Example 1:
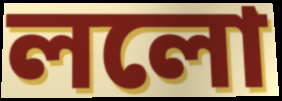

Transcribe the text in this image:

ললো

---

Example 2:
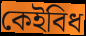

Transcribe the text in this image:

কেইবিধ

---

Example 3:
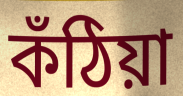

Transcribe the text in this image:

কঁঠিয়া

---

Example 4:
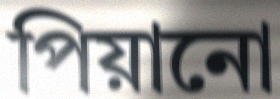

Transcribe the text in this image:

পিয়ানো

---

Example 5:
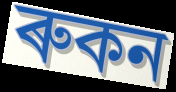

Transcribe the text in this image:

ৰুকন